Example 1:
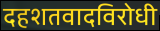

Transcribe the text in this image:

दहशतवादविरोधी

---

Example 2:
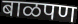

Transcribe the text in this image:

बाळपण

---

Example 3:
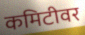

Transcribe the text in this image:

कमिटीवर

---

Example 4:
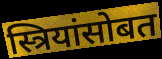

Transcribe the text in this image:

स्त्रियांसोबत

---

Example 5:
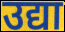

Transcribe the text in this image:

उद्या